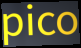
pico